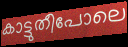
കാട്ടുതീപോലെ